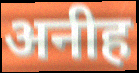
अनीह